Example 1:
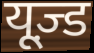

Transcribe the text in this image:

यूज़्ड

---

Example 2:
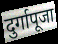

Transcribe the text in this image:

दुर्गापूजा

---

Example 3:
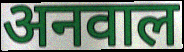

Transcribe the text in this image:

अनवाल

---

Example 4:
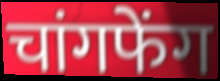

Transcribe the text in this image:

चांगफेंग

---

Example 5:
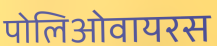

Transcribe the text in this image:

पोलिओवायरस